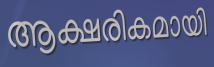
ആക്ഷരികമായി